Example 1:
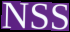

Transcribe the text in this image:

NSS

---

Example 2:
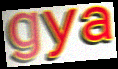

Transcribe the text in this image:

gya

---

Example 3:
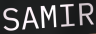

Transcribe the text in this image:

SAMIR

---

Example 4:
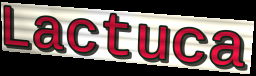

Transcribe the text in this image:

Lactuca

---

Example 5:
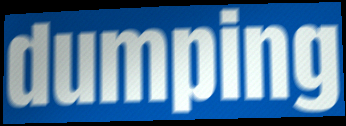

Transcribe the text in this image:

dumping